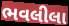
ભવલીલા